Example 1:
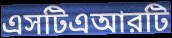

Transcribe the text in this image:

এসটিএআরটি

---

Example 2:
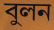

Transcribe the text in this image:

বুলন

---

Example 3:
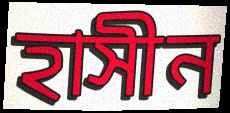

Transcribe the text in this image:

হাসীন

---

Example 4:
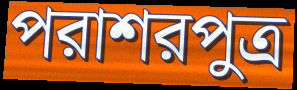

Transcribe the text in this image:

পরাশরপুত্র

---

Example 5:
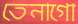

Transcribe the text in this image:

তেনাগো